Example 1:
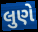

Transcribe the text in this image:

લુણે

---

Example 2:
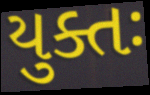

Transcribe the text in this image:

યુક્તઃ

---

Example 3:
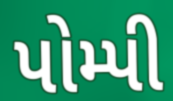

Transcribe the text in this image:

પોમ્પી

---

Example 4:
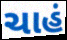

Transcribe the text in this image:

ચાહં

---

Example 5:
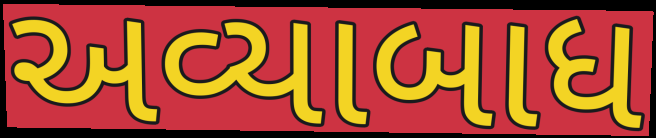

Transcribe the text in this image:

અવ્યાબાધ